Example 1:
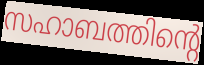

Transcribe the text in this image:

സഹാബത്തിന്റെ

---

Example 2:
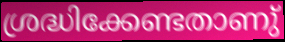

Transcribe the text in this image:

ശ്രദ്ധിക്കേണ്ടതാണു്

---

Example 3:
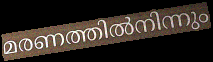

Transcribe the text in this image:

മരണത്തിൽനിന്നും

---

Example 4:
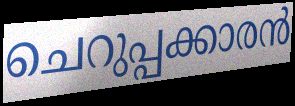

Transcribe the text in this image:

ചെറുപ്പക്കാരൻ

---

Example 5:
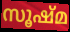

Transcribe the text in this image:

സൂഷ്മ